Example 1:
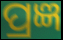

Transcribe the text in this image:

ପ୍ରଜ୍ଞ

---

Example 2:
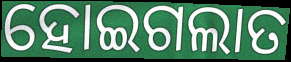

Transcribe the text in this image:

ହୋଇଗଲାତ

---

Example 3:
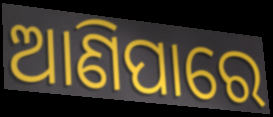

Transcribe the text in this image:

ଆଣିପାରେ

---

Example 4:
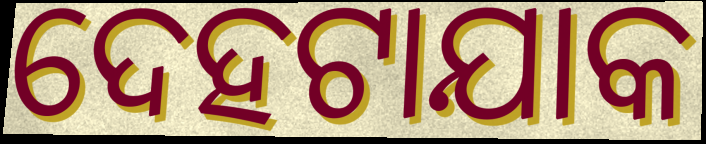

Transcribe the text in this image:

ଦେହଟାଯାକ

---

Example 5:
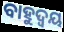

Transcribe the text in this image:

ବାହୁଦ୍ୱୟ